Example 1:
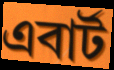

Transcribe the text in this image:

এবার্ট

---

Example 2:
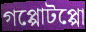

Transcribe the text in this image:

গপ্পোটপ্পো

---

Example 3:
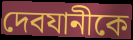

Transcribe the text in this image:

দেবযানীকে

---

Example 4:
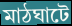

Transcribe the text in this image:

মাঠঘাটে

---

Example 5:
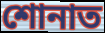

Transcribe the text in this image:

শোনাত